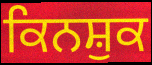
ਕਿਨਸ਼ੁਕ